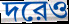
দরেও